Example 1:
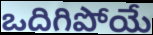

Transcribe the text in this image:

ఒదిగిపోయే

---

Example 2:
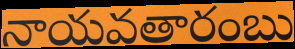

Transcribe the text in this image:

నాయవతారంబు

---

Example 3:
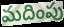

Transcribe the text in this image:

మదింపు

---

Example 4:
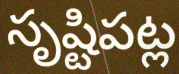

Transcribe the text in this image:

సృష్టిపట్ల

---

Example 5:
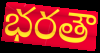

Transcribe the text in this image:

భరతౌ